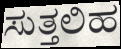
ಸುತ್ತಲಿಹ